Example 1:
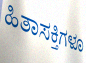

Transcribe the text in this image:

ಹಿತಾಸಕ್ತಿಗಳೂ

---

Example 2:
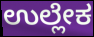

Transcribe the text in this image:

ಉಲ್ಲೇಕ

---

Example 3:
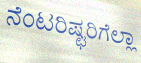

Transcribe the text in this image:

ನೆಂಟರಿಷ್ಟರಿಗೆಲ್ಲಾ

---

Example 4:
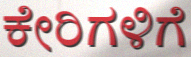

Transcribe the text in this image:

ಕೇರಿಗಳಿಗೆ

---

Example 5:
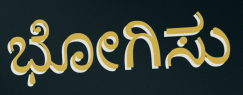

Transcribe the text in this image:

ಭೋಗಿಸು